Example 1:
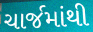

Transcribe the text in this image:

ચાર્જમાંથી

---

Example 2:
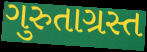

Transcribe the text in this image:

ગુરુતાગ્રસ્ત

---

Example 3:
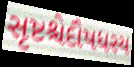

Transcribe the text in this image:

સૃષ્ટશ્ચેદૌષધસ્ય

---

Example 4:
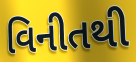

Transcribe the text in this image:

વિનીતથી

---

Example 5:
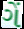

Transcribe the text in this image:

ગેં